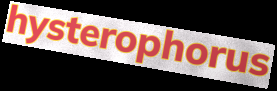
hysterophorus